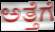
ಅತ್ತೆಗೆ